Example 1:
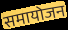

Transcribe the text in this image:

समायोजन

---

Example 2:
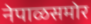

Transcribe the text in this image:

नेपाळसमोर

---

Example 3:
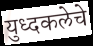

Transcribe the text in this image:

युध्दकलेचे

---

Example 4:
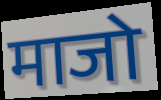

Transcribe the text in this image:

माजो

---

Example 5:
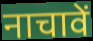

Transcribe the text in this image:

नाचावें